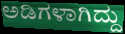
ಅಡಿಗಳಾಗಿದ್ದು